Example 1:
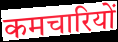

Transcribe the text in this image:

कमचारियों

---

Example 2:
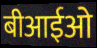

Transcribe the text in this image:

बीआईओ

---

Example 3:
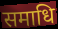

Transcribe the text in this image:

समाधि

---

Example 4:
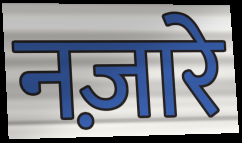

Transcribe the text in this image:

नज़ारे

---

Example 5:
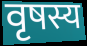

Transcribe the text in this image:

वृषस्य